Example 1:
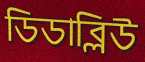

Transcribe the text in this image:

ডিডাব্লিউ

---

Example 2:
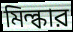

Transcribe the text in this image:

মিল্কার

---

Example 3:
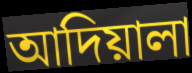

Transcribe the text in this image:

আদিয়ালা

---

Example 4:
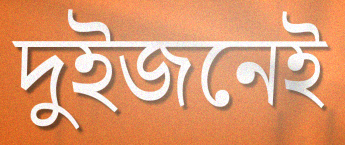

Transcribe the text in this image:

দুইজনেই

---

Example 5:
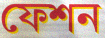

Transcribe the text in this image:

ফেশন